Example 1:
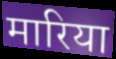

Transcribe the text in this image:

मारिया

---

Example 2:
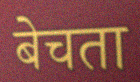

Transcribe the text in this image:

बेचता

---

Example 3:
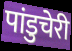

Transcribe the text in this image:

पांडुचेरी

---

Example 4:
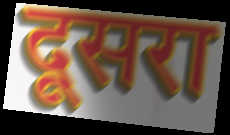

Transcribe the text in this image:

दूसरा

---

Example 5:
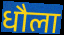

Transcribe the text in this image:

धौला